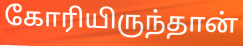
கோரியிருந்தான்